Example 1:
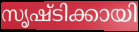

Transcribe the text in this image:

സൃഷ്ടിക്കായി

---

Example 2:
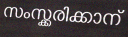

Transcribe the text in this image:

സംസ്ക്കരിക്കാന്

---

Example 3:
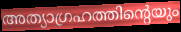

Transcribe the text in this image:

അത്യാഗ്രഹത്തിന്റെയും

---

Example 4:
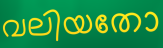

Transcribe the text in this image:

വലിയതോ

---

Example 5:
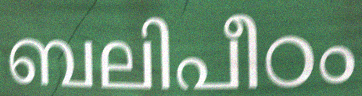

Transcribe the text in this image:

ബലിപീഠം